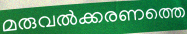
മരുവൽക്കരണത്തെ